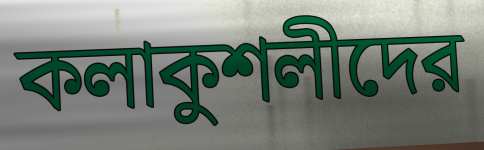
কলাকুশলীদের